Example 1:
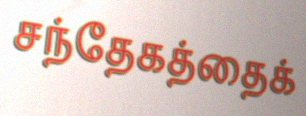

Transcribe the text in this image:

சந்தேகத்தைக்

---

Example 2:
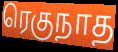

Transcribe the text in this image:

ரெகுநாத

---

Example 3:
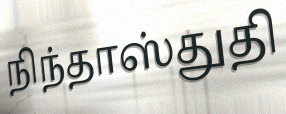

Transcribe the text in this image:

நிந்தாஸ்துதி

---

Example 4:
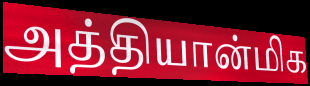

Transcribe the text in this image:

அத்தியான்மிக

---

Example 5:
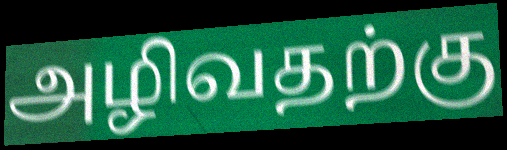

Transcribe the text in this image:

அழிவதற்கு